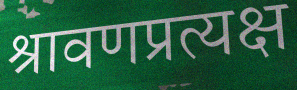
श्रावणप्रत्यक्ष